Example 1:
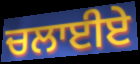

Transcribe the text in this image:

ਚਲਾਈਏ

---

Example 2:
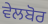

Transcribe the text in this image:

ਵੇਲਬੋਰ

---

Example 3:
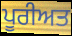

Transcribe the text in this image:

ਪੂਰੀਅਤ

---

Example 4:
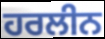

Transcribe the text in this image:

ਹਰਲੀਨ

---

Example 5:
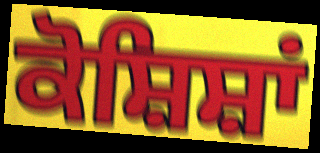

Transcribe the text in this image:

ਕੋਸ਼ਿਸ਼ਾਂ